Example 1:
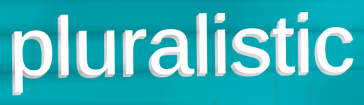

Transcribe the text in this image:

pluralistic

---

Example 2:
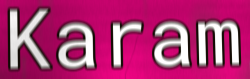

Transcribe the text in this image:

Karam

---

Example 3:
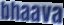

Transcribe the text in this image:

bhaava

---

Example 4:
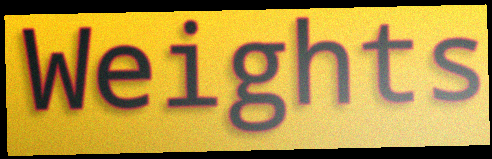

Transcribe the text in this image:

Weights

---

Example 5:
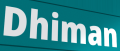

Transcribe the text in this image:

Dhiman